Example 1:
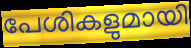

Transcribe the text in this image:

പേശികളുമായി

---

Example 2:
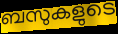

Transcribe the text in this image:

ബസുകളുടെ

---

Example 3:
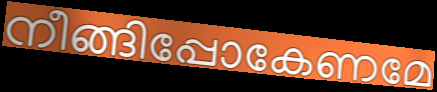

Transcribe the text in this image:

നീങ്ങിപ്പോകേണമേ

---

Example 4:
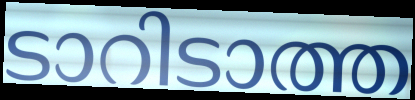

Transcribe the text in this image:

ടാറിടാത്ത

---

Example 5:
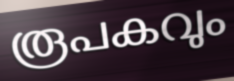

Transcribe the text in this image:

രൂപകവും